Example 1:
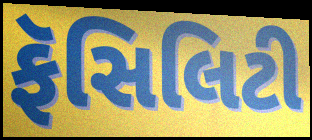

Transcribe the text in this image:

ફૅસિલિટી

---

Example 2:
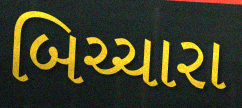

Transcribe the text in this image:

બિચ્ચારા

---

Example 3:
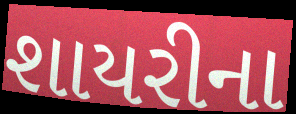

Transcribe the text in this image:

શાયરીના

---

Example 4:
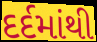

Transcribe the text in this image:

દર્દમાંથી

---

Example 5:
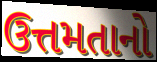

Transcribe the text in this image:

ઉત્તમતાનો